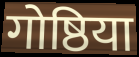
गोष्ठिया